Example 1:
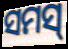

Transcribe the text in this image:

ସମସ୍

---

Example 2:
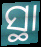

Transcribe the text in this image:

ସ୍ଥା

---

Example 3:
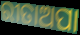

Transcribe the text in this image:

ରୀତାଅପା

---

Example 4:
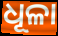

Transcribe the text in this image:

ଧୂଳା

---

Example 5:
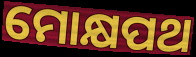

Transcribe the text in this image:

ମୋକ୍ଷପଥ